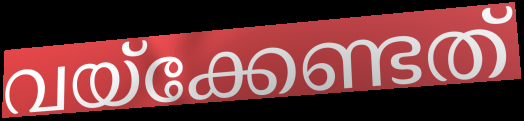
വയ്ക്കേണ്ടത്